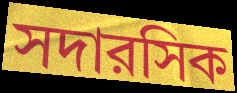
সদারসিক